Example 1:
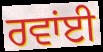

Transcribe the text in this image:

ਰਵਾਂਈ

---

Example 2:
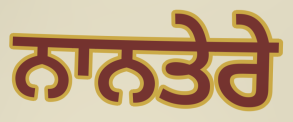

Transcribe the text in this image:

ਨਾਨਤੇਰੇ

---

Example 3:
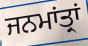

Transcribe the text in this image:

ਜਨਮਾਂਤ੍ਰਾਂ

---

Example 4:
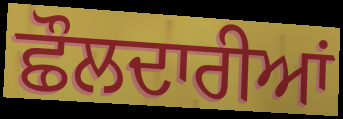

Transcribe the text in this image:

ਛੌਲਦਾਰੀਆਂ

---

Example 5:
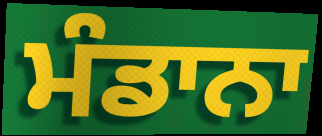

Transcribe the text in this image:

ਮੰਡਾਨਾ